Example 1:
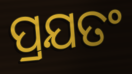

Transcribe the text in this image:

ପ୍ରଯତଂ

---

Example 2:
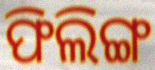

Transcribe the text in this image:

ଫିଲିଙ୍ଗ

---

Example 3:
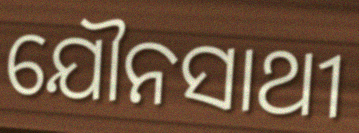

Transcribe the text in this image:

ଯୌନସାଥୀ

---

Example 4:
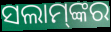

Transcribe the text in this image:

ସଲାମ୍‌ଙ୍କର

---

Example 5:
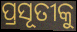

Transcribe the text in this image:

ପ୍ରସୂତୀକୁ